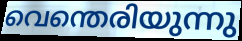
വെന്തെരിയുന്നു